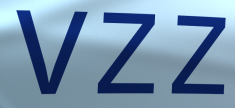
vzz